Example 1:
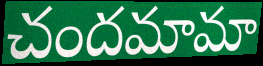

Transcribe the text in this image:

చందమామా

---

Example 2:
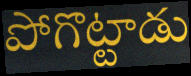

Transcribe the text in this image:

పోగొట్టాడు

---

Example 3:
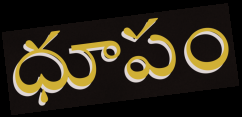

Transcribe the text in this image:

ధూపం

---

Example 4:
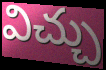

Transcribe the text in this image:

విచ్చు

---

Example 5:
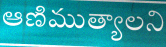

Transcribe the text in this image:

ఆణిముత్యాలని